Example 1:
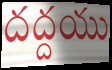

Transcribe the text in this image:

దద్దయు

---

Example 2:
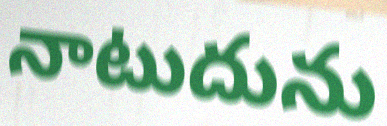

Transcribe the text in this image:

నాటుదును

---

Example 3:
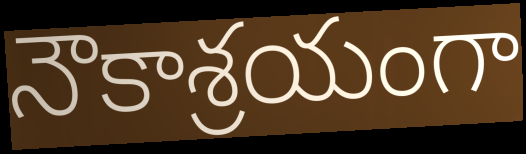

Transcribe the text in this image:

నౌకాశ్రయంగా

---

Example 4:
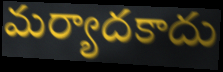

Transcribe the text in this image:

మర్యాదకాదు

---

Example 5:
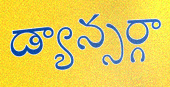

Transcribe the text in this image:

డ్యాన్సర్గా